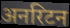
अनरिटन